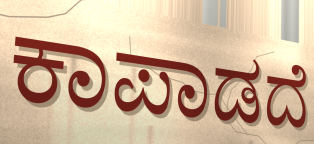
ಕಾಪಾಡದೆ